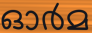
ഓർമ